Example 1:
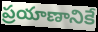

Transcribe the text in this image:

ప్రయాణానికే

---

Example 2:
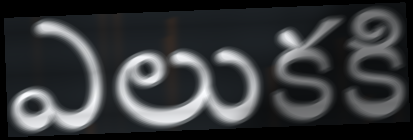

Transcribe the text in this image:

ఎలుకకి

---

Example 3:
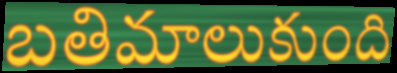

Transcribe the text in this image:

బతిమాలుకుంది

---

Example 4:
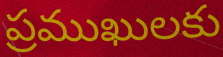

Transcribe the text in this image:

ప్రముఖులకు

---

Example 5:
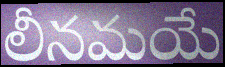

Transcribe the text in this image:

లీనమయే